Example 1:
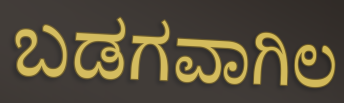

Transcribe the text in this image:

ಬಡಗವಾಗಿಲ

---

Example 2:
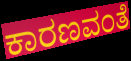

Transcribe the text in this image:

ಕಾರಣವಂತೆ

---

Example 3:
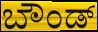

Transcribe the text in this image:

ಬೌಂಡ್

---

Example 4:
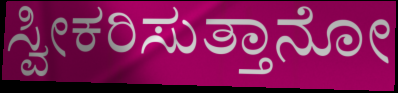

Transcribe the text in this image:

ಸ್ವೀಕರಿಸುತ್ತಾನೋ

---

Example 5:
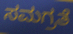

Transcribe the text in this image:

ಸಮಗ್ರತೆ